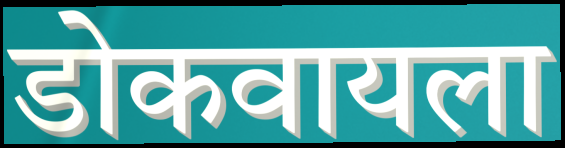
डोकवायला